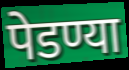
पेडण्या